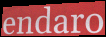
endaro